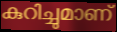
കുറിച്ചുമാണ്